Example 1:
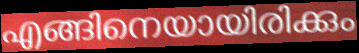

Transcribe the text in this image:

എങ്ങിനെയായിരിക്കും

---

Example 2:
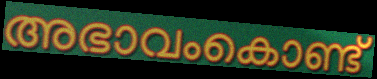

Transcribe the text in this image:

അഭാവംകൊണ്ട്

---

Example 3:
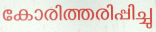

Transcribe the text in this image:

കോരിത്തരിപ്പിച്ചു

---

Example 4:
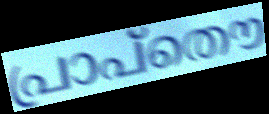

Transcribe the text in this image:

പ്രാപ്തൌ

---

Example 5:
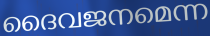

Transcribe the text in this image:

ദൈവജനമെന്ന